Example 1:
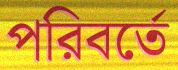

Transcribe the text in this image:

পরিবর্তে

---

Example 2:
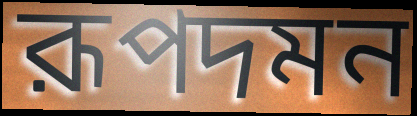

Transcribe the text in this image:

রূপদমন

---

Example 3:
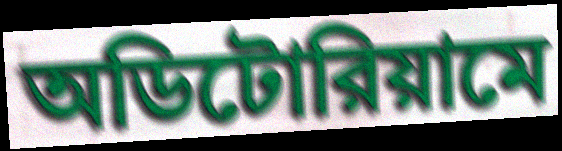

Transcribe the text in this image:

অডিটোরিয়ামে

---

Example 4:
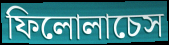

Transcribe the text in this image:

ফিলোলাচেস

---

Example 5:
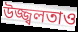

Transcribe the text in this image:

উজ্জ্বলতাও